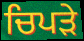
ਚਿਪੜੇ